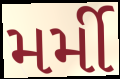
મર્મી